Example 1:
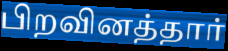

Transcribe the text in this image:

பிறவினத்தார்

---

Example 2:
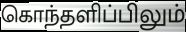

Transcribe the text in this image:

கொந்தளிப்பிலும்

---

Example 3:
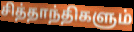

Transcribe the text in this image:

சித்தாந்திகளும்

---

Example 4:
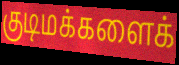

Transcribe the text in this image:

குடிமக்களைக்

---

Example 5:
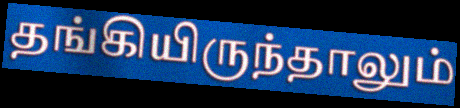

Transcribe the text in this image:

தங்கியிருந்தாலும்